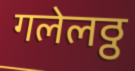
गलेलठ्ठ